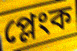
প্লেংক